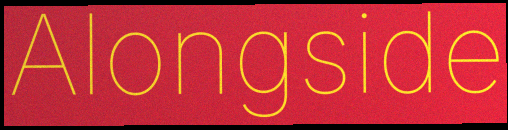
Alongside